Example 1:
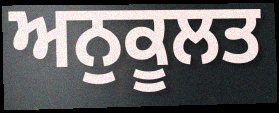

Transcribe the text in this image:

ਅਨੁਕੂਲਤ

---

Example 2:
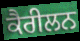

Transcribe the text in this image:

ਕੈਰੀਲਨ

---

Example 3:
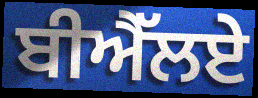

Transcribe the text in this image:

ਬੀਐੱਲਏ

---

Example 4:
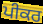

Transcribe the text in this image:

ਪੀਕਰ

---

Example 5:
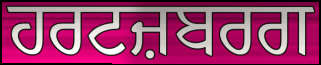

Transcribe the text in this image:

ਹਰਟਜ਼ਬਰਗ